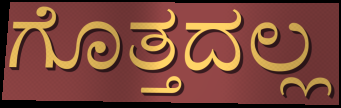
ಗೊತ್ತದಲ್ಲ